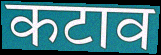
कटाव